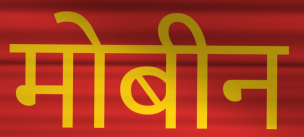
मोबीन